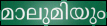
മാലുമിയും